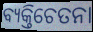
ବ୍ୟକ୍ତିଚେତନା